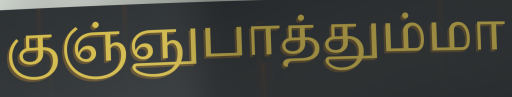
குஞ்ஞுபாத்தும்மா